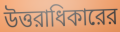
উত্তরাধিকারের